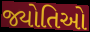
જ્યોતિઓ